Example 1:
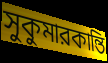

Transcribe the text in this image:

সুকুমারকান্তি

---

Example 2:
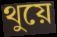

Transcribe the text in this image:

থুয়ে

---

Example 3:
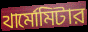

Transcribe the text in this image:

থার্মোমিটার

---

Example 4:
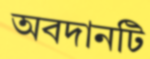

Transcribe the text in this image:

অবদানটি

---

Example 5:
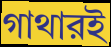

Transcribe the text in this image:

গাথারই